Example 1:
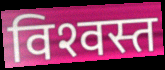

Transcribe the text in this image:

विश्वस्त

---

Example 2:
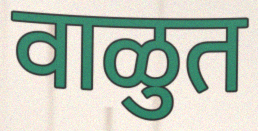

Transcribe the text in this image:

वाळुत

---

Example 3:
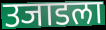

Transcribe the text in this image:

उजाडला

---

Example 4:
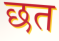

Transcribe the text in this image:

छत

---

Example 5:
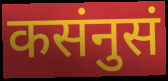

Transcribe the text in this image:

कसंनुसं